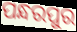
ପନ୍ଧରପୁର